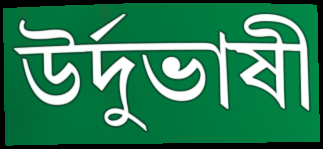
উর্দুভাষী